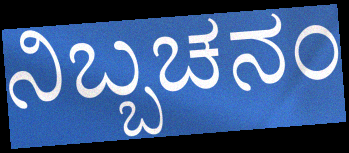
ನಿಬ್ಬಚನಂ